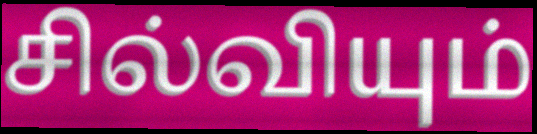
சில்வியும்